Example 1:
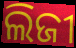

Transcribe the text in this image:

ଲିଜୀ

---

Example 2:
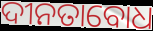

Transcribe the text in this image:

ଦୀନତାବୋଧ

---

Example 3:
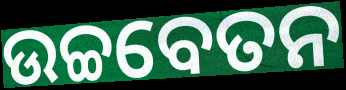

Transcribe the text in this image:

ଉଚ୍ଚବେତନ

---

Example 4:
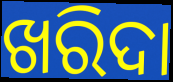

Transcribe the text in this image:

ଖରିଦା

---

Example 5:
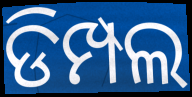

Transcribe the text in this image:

ଡିମ୍ପଲ